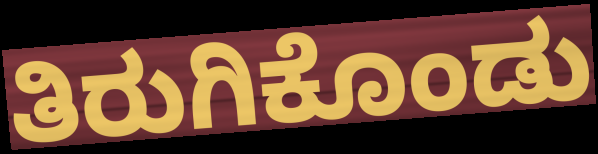
ತಿರುಗಿಕೊಂಡು